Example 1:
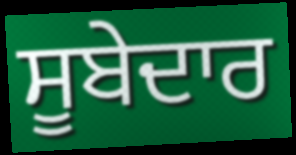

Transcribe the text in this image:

ਸੂਬੇਦਾਰ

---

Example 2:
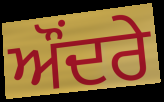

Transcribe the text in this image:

ਔਂਦਰੇ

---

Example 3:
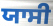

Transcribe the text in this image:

ਯਾਸੀ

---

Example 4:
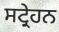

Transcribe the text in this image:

ਸਟ੍ਰੇਹਨ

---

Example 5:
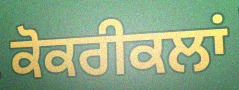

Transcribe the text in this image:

ਕੋਕਰੀਕਲਾਂ